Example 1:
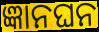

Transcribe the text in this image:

ଜ୍ଞାନଘନ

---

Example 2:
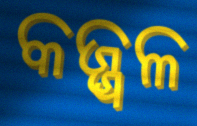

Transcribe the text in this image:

କଜ୍ଜ୍ୱଳ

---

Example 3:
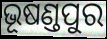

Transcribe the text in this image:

ଭୂଷଣ୍ଡପୁର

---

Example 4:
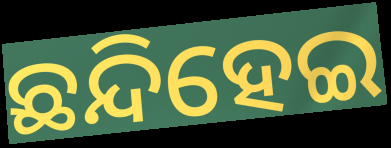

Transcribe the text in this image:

ଛନ୍ଦିହେଇ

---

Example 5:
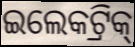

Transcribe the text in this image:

ଇଲେକଟ୍ରିକ୍